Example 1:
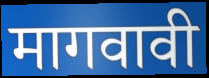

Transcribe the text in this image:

मागवावी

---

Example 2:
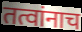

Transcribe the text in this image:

तत्वांनाच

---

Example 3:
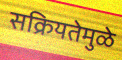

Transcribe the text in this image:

सक्रियतेमुळे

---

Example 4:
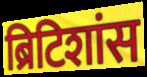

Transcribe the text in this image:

ब्रिटिशांस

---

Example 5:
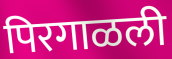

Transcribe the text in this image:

पिरगाळली